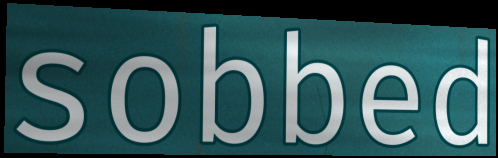
sobbed